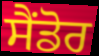
ਸੈਂਡੋਰ